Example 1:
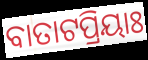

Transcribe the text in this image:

ବାତାଟପ୍ରିୟାଃ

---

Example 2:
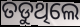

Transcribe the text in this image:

ତଡୁଥିଲେ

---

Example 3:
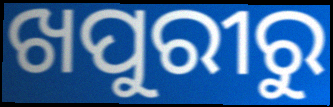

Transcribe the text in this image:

ଖପୁରୀରୁ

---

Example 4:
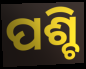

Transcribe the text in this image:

ପଶ୍ଚି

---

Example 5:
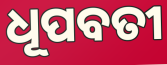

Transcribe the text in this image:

ଧୂପବତୀ